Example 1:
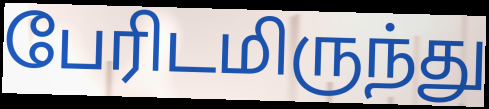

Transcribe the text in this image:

பேரிடமிருந்து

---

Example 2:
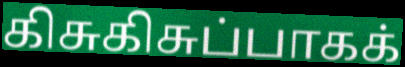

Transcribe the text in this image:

கிசுகிசுப்பாகக்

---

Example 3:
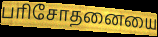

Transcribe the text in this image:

பரிசோதனையை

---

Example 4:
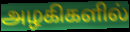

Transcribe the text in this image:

அழகிகளில்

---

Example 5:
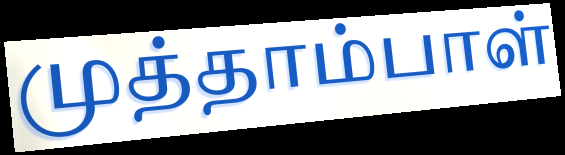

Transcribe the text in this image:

முத்தாம்பாள்